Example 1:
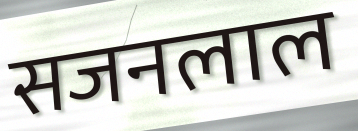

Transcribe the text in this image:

सजनलाल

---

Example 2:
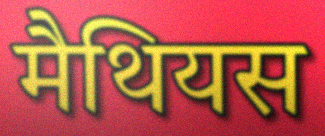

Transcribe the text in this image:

मैथियस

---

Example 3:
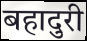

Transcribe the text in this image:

बहादुरी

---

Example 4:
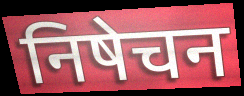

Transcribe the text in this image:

निषेचन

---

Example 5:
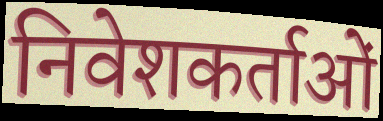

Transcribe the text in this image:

निवेशकर्ताओं